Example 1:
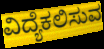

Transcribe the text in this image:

ವಿದ್ಯೆಕಲಿಸುವ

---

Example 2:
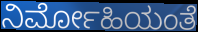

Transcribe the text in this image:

ನಿರ್ಮೋಹಿಯಂತೆ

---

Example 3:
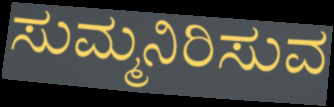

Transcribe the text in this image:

ಸುಮ್ಮನಿರಿಸುವ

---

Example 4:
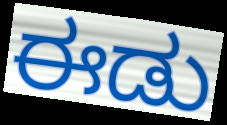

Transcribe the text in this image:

ಈಡು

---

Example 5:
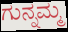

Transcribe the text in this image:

ಗುನ್ನಮ್ಮ